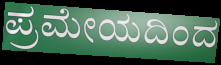
ಪ್ರಮೇಯದಿಂದ